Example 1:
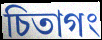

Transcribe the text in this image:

চিতাগং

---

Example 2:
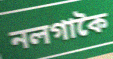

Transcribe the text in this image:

নলগাকৈ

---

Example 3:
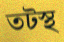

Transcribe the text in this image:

তটস্থ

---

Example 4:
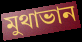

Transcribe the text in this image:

মুথাভান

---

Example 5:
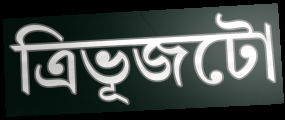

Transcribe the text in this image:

ত্ৰিভূজটো